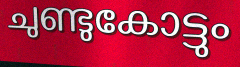
ചുണ്ടുകോട്ടും